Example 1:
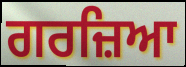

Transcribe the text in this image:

ਗਰਜ਼ਿਆ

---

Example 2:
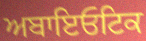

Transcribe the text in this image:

ਅਬਾਇਓਟਿਕ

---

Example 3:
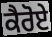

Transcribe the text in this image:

ਕੈਰੋਏ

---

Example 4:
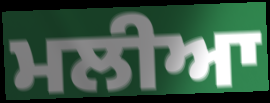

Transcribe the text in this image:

ਮਲੀਆ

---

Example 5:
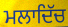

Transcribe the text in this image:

ਮਲਾਦਿੱਚ